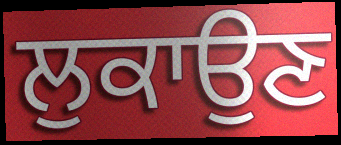
ਲੁਕਾਉਣ